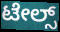
ಟೇಲ್ಸ್